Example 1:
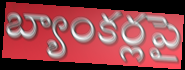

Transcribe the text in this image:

బ్యాంకర్లపై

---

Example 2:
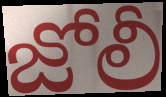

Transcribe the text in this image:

జోలీ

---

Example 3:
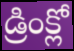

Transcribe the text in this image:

డ్రింక్లో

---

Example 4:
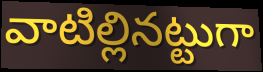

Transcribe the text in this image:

వాటిల్లినట్టుగా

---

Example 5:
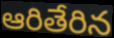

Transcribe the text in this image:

ఆరితేరిన